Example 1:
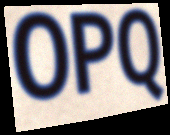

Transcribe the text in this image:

OPQ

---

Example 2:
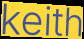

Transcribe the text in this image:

keith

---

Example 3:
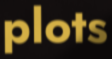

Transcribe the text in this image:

plots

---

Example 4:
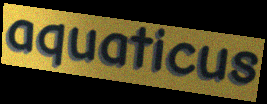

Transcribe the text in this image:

aquaticus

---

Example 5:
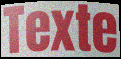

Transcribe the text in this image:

Texte